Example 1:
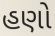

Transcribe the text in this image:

હણો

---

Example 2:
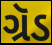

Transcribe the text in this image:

ગ્રૅડ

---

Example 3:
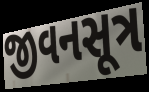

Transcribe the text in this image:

જીવનસૂત્ર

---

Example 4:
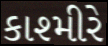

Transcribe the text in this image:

કાશ્મીરે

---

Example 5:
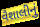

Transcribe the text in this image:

વૈશાલીનું